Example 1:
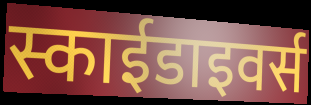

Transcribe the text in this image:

स्काईडाइवर्स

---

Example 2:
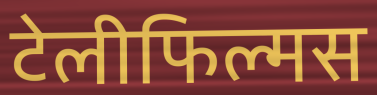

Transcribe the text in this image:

टेलीफिल्मस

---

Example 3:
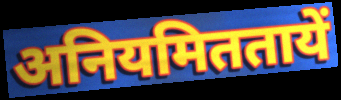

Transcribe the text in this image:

अनियमिततायें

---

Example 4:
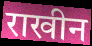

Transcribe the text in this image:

राखीन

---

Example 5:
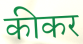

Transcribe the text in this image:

कीकर